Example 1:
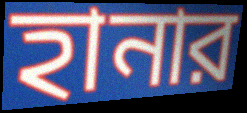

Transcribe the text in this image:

হানার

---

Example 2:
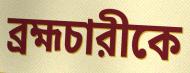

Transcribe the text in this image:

ব্রহ্মচারীকে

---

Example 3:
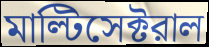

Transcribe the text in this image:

মাল্টিসেক্টরাল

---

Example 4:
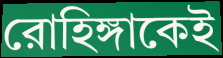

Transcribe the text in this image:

রোহিঙ্গাকেই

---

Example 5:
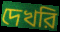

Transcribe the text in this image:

দেখরি